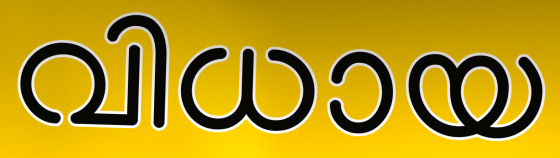
വിധായ